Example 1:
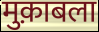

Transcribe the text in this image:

मुक़ाबला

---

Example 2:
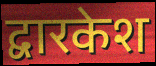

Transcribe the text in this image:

द्वारकेश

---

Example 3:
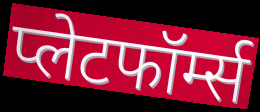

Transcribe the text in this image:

प्लेटफॉर्म्स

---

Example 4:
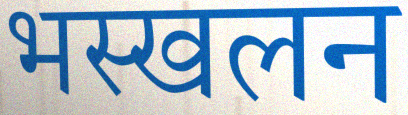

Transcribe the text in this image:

भस्खलन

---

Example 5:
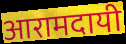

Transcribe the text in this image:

आरामदायी